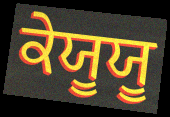
ਕੇਯੂਯੂ